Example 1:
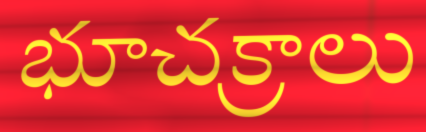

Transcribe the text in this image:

భూచక్రాలు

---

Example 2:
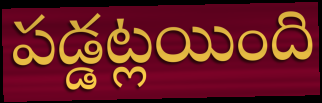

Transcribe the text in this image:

పడ్డట్లయింది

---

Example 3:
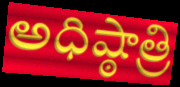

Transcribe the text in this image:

అధిష్ఠాత్రి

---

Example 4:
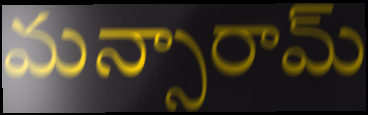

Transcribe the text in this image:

మన్సారామ్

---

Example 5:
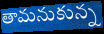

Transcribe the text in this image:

తామనుకున్న